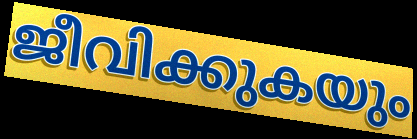
ജീവിക്കുകയും